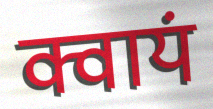
क्वायं